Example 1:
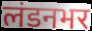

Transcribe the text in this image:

लंडनभर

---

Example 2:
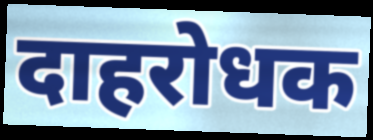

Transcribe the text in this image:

दाहरोधक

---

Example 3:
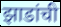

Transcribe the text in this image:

झाडांची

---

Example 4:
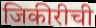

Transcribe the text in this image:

जिकीरीची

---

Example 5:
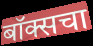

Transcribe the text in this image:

बॉक्सचा